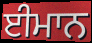
ਈਮਾਨ